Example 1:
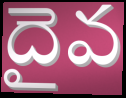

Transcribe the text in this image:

దైవ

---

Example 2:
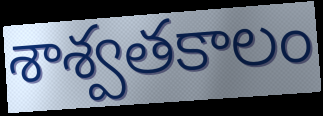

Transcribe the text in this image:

శాశ్వతకాలం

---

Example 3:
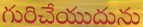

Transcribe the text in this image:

గురిచేయుదును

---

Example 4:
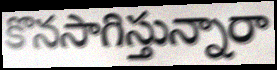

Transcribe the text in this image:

కొనసాగిస్తున్నారా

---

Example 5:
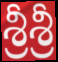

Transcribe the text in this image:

శ్రీశ్రీ